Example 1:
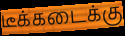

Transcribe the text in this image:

டீக்கடைக்கு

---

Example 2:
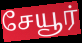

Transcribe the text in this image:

சேயூர்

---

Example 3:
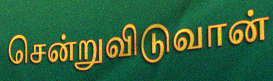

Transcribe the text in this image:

சென்றுவிடுவான்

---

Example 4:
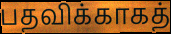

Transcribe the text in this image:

பதவிக்காகத்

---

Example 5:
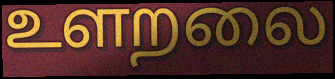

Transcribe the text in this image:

உளறலை